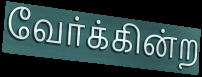
வேர்க்கின்ற